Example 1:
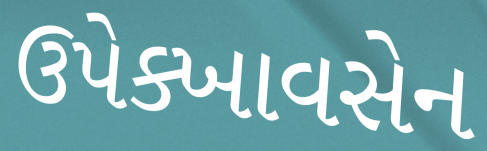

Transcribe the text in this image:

ઉપેક્ખાવસેન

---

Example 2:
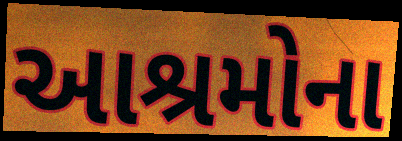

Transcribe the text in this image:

આશ્રમોના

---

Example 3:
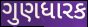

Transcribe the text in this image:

ગુણધારક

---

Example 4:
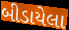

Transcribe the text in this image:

બીડાયેલા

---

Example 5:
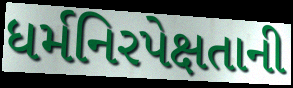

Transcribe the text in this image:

ધર્મનિરપેક્ષતાની